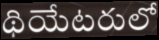
థియేటరులో